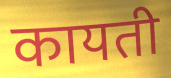
कायती